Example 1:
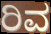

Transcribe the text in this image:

ರಿವ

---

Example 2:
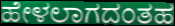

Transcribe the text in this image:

ಹೇಳಲಾಗದಂತಹ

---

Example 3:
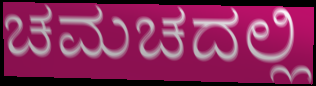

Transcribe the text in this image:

ಚಮಚದಲ್ಲಿ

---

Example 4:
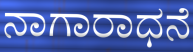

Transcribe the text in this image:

ನಾಗಾರಾಧನೆ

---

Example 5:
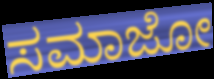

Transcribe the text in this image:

ಸಮಾಜೋ